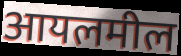
आयलमील